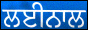
ਲਈਨਾਲ